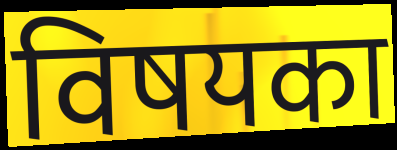
विषयका